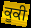
ਕੂਕੀ